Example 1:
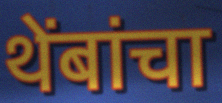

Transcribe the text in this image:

थेंबांचा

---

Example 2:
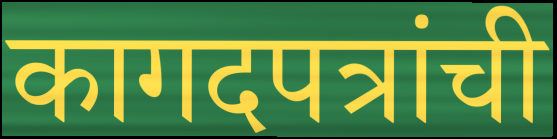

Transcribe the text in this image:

कागदपत्रांची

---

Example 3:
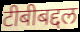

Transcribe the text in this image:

टीबीबद्दल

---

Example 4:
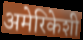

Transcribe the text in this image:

अमेरिकेशी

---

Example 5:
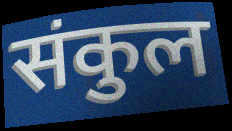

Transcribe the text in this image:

संकुल